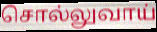
சொல்லுவாய்